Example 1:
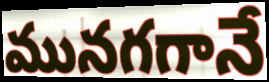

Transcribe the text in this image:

మునగగానే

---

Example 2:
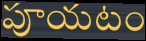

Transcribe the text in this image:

పూయటం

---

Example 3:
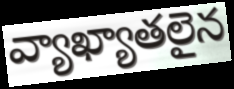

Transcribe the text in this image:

వ్యాఖ్యాతలైన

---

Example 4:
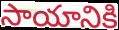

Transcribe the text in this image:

సాయానికి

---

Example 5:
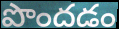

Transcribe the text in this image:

పొందడం